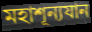
মহাশূন্যযান